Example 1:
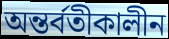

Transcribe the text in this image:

অন্তর্বতীকালীন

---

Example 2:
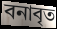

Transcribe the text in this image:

বনাবৃত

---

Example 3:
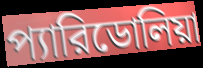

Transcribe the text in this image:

প্যারিডোলিয়া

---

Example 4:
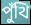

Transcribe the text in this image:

পুঁথি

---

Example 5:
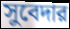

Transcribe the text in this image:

সুবেদার